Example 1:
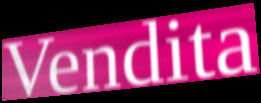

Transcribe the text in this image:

Vendita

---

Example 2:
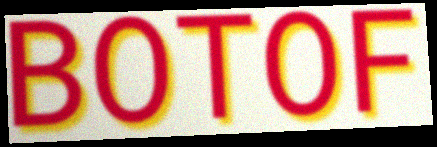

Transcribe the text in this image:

BOTOF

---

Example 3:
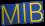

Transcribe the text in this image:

MIB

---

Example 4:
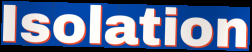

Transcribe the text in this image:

Isolation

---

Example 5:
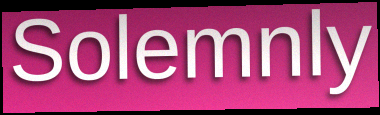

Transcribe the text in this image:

Solemnly